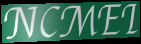
NCMEI